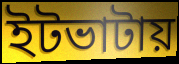
ইটভাটায়